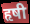
हृषी